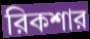
রিকশার